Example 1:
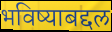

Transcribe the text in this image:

भविष्याबद्दल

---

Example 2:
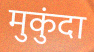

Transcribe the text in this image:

मुकुंदा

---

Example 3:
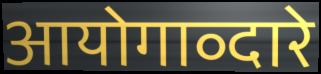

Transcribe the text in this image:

आयोगाव्दारे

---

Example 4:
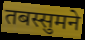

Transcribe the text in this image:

तबस्सुमने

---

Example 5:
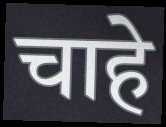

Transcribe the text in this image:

चाहे